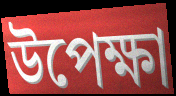
উপেক্ষা